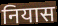
नियास